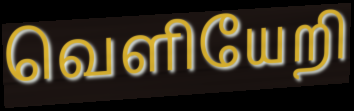
வெளியேறி